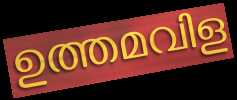
ഉത്തമവിള